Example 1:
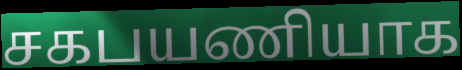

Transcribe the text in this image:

சகபயணியாக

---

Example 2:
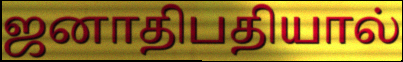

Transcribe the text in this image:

ஜனாதிபதியால்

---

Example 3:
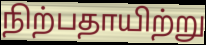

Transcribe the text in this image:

நிற்பதாயிற்று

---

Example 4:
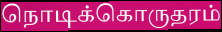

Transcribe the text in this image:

நொடிக்கொருதரம்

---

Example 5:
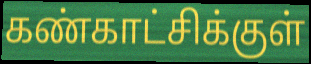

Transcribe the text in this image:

கண்காட்சிக்குள்